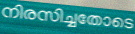
നിരസിച്ചതോടെ